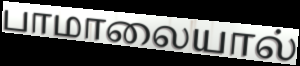
பாமாலையால்